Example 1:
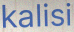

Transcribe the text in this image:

kalisi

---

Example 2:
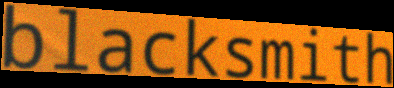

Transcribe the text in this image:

blacksmith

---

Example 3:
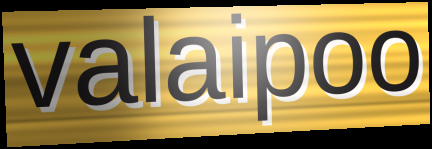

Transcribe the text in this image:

valaipoo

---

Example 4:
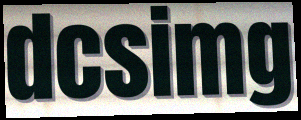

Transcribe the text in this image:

dcsimg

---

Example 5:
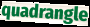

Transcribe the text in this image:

quadrangle